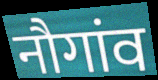
नौगांव